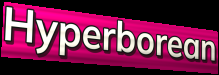
Hyperborean